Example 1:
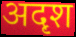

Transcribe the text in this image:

अदृश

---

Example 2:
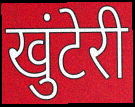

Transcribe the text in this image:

खुंटेरी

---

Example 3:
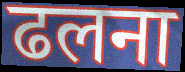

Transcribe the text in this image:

ढलना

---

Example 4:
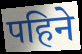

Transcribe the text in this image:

पहिने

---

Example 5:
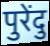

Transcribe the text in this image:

पुरेंदु